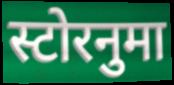
स्टोरनुमा